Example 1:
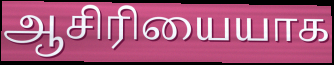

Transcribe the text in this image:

ஆசிரியையாக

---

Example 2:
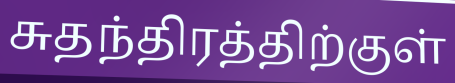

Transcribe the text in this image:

சுதந்திரத்திற்குள்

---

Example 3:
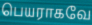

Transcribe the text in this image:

பெயராகவே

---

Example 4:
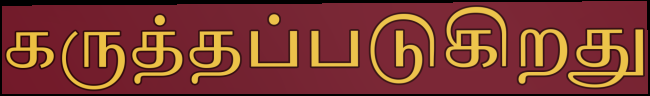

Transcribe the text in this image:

கருத்தப்படுகிறது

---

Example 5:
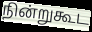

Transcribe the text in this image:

நின்றுகூட